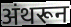
अंथरून